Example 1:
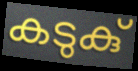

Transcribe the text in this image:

കടുകു്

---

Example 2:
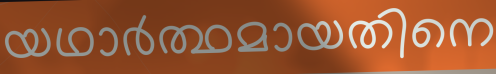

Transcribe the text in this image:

യഥാർത്ഥമായതിനെ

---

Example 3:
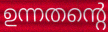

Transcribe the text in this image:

ഉന്നതന്റെ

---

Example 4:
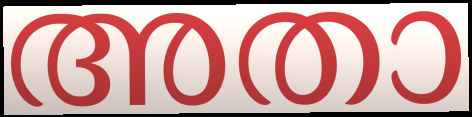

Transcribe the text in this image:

അതാ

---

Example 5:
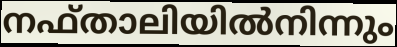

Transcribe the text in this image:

നഫ്താലിയിൽനിന്നും